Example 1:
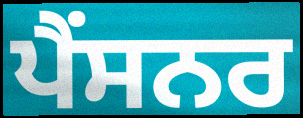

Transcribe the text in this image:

ਪੈਂਸਨਰ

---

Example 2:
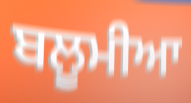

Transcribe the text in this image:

ਬਲੂਮੀਆ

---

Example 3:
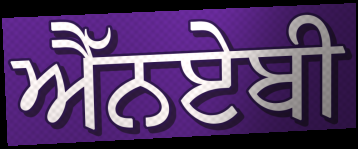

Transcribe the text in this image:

ਐੱਨਏਬੀ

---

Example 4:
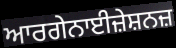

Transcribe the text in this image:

ਆਰਗੇਨਾਈਜ਼ੇਸ਼ਨਜ਼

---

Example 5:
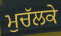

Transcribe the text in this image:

ਮੁਚੱਲਕੇ